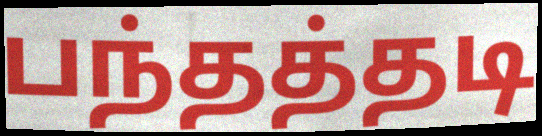
பந்தத்தடி